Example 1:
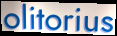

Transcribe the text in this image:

olitorius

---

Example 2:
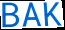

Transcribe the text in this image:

BAK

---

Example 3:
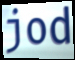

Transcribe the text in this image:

jod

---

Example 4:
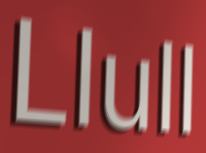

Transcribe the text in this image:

Llull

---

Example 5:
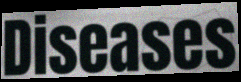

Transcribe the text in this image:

Diseases